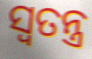
ସ୍ୱତନ୍ତ୍ର